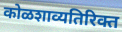
कोळशाव्यतिरिक्त